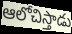
ఆలోచిస్తాడు